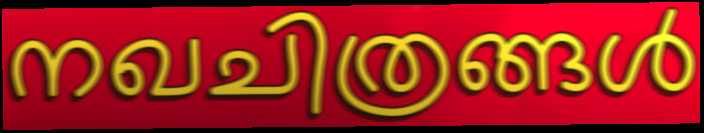
നഖചിത്രങ്ങൾ